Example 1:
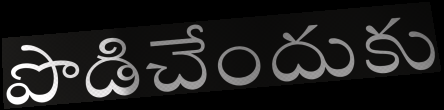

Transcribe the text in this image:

పొడిచేందుకు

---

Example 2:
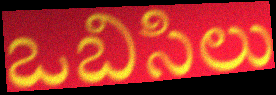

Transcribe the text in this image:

ఒబిసిలు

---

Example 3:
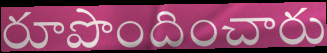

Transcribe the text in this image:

రూపొందించారు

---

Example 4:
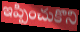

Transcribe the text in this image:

ఇప్పించుకొని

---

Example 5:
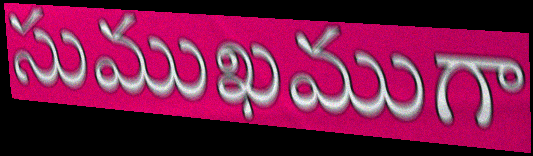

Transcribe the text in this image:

సుముఖముగా